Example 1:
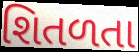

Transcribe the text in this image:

શિતળતા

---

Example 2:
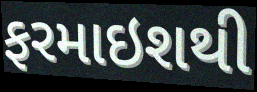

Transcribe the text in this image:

ફરમાઇશથી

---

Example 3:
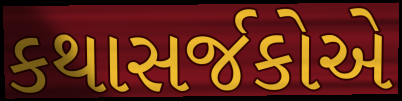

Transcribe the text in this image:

કથાસર્જકોએ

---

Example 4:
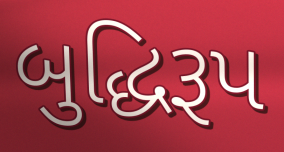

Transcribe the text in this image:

બુદ્ધિરૂપ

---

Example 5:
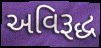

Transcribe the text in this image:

અવિરૂદ્ધ